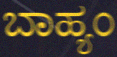
ಬಾಹ್ಯಂ